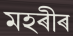
মহৰীৰ